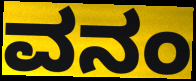
ವನಂ